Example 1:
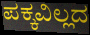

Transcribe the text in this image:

ಪಕ್ಕವಿಲ್ಲದ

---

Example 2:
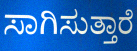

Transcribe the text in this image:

ಸಾಗಿಸುತ್ತಾರೆ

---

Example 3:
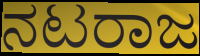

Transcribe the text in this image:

ನಟರಾಜ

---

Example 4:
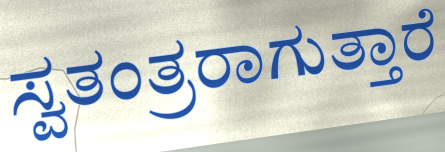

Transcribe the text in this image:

ಸ್ವತಂತ್ರರಾಗುತ್ತಾರೆ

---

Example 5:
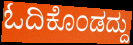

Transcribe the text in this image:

ಓದಿಕೊಂಡದ್ದು